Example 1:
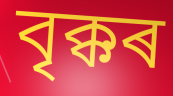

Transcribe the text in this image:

বৃক্কৰ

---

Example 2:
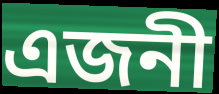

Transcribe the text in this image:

এজনী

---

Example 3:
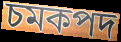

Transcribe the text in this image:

চমকপদ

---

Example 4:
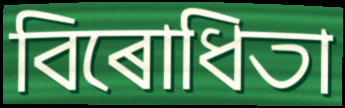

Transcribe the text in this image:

বিৰোধিতা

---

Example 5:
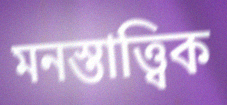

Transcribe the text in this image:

মনস্তাত্ত্বিক